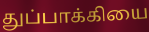
துப்பாக்கியை